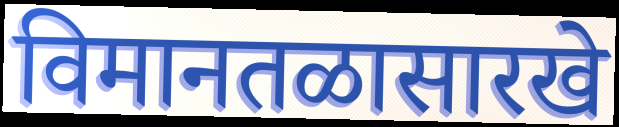
विमानतळासारखे